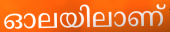
ഓലയിലാണ്